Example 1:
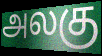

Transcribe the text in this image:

அலகு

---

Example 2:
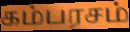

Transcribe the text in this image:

கம்பரசம்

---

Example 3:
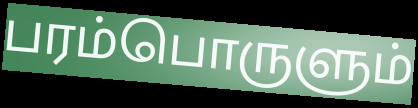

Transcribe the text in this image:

பரம்பொருளும்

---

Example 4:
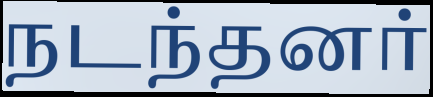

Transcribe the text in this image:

நடந்தனர்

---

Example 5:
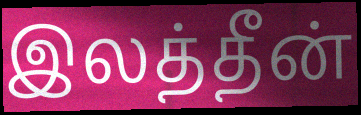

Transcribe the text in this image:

இலத்தீன்